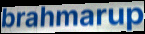
brahmarup